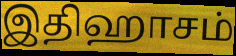
இதிஹாசம்